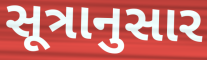
સૂત્રાનુસાર